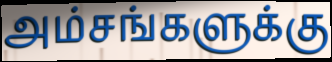
அம்சங்களுக்கு